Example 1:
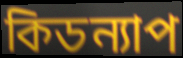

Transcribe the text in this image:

কিডন্যাপ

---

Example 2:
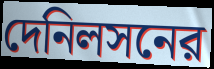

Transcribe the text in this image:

দেনিলসনের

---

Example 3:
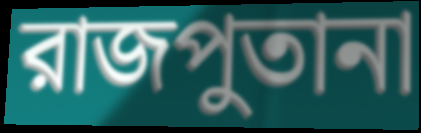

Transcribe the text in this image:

রাজপুতানা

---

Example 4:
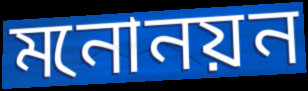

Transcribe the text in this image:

মনোনয়ন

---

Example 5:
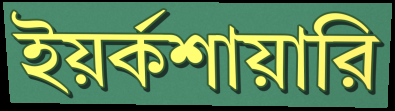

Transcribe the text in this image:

ইয়র্কশায়ারি